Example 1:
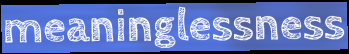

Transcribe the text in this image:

meaninglessness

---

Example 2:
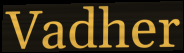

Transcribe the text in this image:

Vadher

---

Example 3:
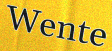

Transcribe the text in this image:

Wente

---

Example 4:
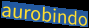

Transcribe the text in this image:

aurobindo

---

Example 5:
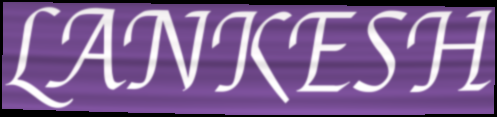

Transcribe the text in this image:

LANKESH